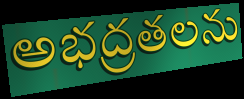
అభద్రతలను